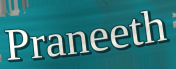
Praneeth